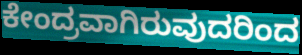
ಕೇಂದ್ರವಾಗಿರುವುದರಿಂದ